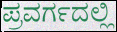
ಪ್ರವರ್ಗದಲ್ಲಿ